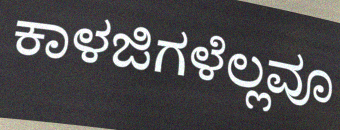
ಕಾಳಜಿಗಳೆಲ್ಲವೂ